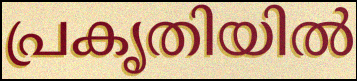
പ്രകൃതിയിൽ